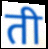
ती